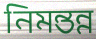
নিমন্তন্ন